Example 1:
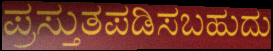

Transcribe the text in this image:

ಪ್ರಸ್ತುತಪಡಿಸಬಹುದು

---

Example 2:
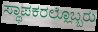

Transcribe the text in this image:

ಸ್ಥಾಪಕರಲ್ಲೊಬ್ಬರು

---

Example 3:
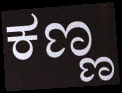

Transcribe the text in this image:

ಕಣ್ಣ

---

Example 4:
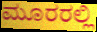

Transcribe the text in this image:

ಮೂರರಲ್ಲಿ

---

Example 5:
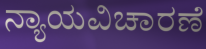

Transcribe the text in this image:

ನ್ಯಾಯವಿಚಾರಣೆ